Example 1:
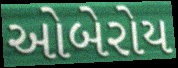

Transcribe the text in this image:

ઓબેરોય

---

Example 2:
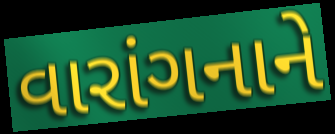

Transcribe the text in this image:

વારાંગનાને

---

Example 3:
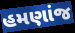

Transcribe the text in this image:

હમણાંજ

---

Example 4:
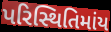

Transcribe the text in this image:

પરિસ્થિતિમાંય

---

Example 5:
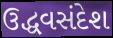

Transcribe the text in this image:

ઉદ્ધવસંદેશ